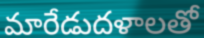
మారేడుదళాలతో